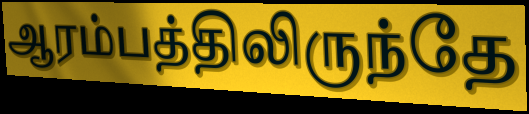
ஆரம்பத்திலிருந்தே